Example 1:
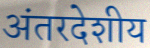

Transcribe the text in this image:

अंतरदेशीय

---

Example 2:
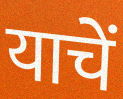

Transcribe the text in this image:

याचें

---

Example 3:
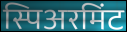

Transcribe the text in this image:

स्पिअरमिंट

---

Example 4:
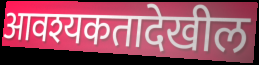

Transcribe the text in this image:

आवश्यकतादेखील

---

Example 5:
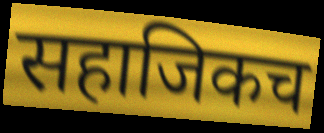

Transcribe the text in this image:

सहाजिकच